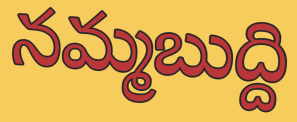
నమ్మబుద్ది